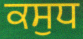
ਕਸੁਧ